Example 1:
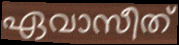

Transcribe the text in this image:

ഏവാസീത്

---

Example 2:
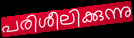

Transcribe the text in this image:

പരിശീലിക്കുന്നു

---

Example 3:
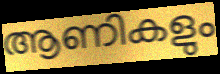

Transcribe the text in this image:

ആണികളും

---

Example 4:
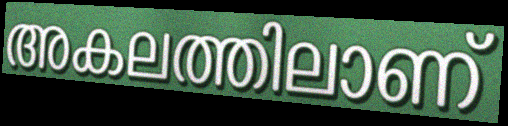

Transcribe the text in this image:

അകലത്തിലാണ്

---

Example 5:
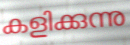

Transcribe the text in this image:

കളിക്കുന്നു